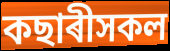
কছাৰীসকল